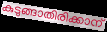
കുടുങ്ങാതിരിക്കാന്